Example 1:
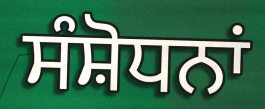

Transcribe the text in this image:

ਸੰਸ਼ੋਧਨਾਂ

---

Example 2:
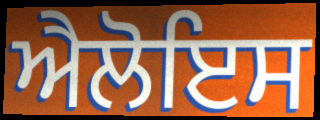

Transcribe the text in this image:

ਐਲੋਇਸ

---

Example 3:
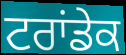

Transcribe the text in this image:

ਟਰਾਂਡੇਕ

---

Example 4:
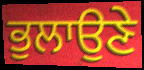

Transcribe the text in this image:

ਭੁਲਾਉਣੇ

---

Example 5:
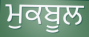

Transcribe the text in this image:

ਮੁਕਬੂਲ